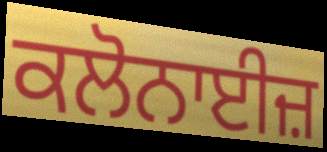
ਕਲੋਨਾਈਜ਼